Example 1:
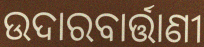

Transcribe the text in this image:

ଉଦାରବାର୍ତ୍ତାଣୀ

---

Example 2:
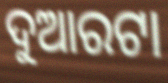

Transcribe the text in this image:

ଦୁଆରଟା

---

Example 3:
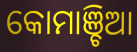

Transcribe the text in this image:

କୋମାଞ୍ଚିଆ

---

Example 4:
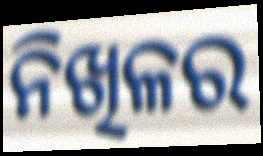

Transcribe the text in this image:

ନିଖିଳର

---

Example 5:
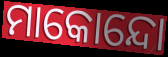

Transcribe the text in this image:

ମାକୋନ୍ଦୋ